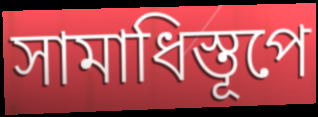
সামাধিস্তূপে